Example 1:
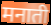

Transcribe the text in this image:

मनाती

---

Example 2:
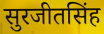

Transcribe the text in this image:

सुरजीतसिंह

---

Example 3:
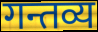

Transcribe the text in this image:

गन्तव्य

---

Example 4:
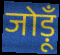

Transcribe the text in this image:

जोड़ूँ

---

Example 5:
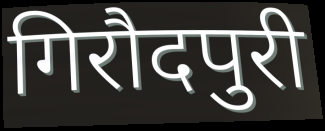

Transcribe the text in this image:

गिरौदपुरी